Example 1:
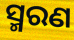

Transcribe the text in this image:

ସ୍ମରଣ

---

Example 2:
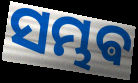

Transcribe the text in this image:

ସମ୍ଭଵ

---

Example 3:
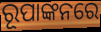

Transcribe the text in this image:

ରୂପାଙ୍କନରେ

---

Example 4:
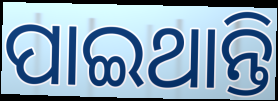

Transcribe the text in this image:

ପାଇଥାନ୍ତି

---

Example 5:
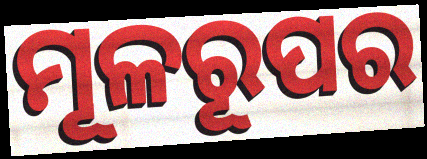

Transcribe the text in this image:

ମୂଳରୂପର